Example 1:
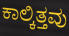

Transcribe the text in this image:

ಕಾಲ್ಕಿತ್ತವು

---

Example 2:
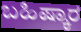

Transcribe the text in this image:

ಬಹಿಷ್ಕಾರ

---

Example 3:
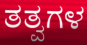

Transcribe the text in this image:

ತತ್ವಗಳ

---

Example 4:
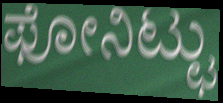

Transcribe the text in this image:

ಫೋನಿಟ್ಟು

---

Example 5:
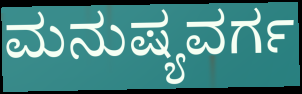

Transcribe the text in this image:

ಮನುಷ್ಯವರ್ಗ